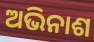
ଅଭିନାଶ